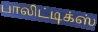
பாலிட்டிக்ஸ்